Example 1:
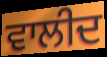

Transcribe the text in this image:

ਵਾਲੀਦ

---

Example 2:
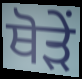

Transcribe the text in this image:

ਥੋੜੇਂ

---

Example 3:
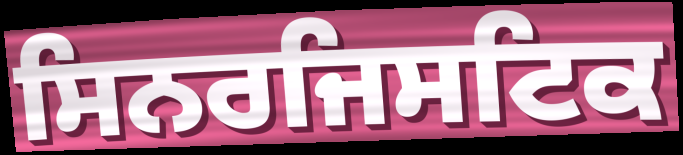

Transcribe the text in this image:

ਸਿਨਰਜਿਸਟਿਕ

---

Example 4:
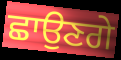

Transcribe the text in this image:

ਛਾਉਣਗੇ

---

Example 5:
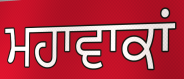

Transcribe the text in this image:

ਮਹਾਵਾਕਾਂ